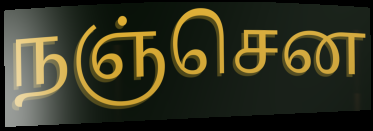
நஞ்சென